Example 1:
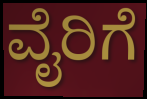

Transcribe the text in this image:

ವೈರಿಗೆ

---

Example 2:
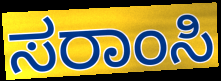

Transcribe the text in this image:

ಸರಾಂಸಿ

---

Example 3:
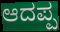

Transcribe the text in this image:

ಆದಪ್ಪ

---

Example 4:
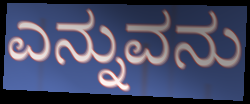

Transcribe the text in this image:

ಎನ್ನುವನು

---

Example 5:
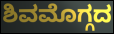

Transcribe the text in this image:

ಶಿವಮೊಗ್ಗದ